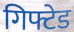
गिफ्टेड